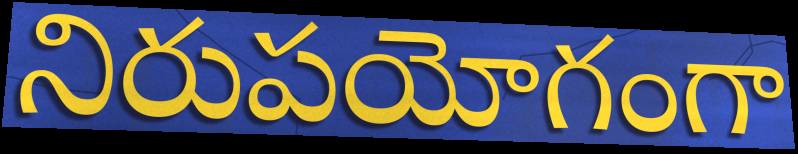
నిరుపయోగంగా